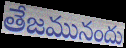
తేజమునందు